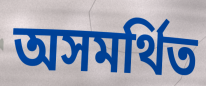
অসমর্থিত